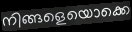
നിങ്ങളെയൊക്കെ